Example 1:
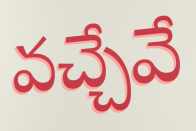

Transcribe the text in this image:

వచ్చేవే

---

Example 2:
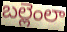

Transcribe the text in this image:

బల్లెంలా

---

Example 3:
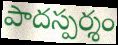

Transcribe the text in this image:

పాదస్పర్శం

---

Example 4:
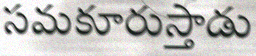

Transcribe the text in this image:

సమకూరుస్తాడు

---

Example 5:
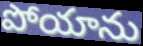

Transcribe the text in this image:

పోయాను